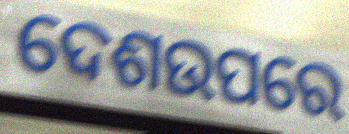
ଦେଶଉପରେ